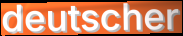
deutscher